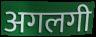
अगलगी